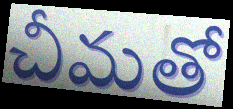
చీమతో